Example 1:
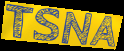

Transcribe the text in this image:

TSNA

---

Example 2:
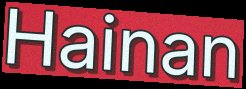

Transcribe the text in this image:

Hainan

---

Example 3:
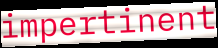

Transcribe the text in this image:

impertinent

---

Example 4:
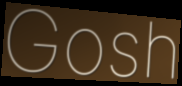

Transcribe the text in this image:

Gosh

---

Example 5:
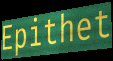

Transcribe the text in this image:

Epithet